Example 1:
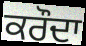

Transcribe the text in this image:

ਕਰੌਦਾ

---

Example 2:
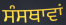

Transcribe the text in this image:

ਸੰਸਥਾਵਾਂ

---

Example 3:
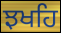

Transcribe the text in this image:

ਝਖਹਿ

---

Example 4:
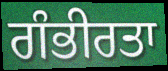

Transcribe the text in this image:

ਗੰਭੀਰਤਾ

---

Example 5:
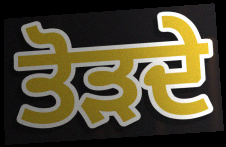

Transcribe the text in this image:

ਤੋੜਦੇ